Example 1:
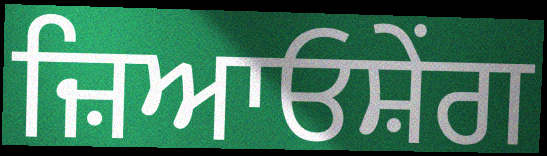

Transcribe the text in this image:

ਜ਼ਿਆਓਸ਼ੇਂਗ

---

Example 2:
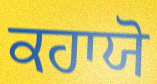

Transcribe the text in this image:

ਕਹਾਯੋ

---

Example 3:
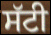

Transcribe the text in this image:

ਸੱਟੀ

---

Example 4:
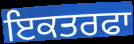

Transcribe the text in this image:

ਇਕਤਰਫਾ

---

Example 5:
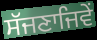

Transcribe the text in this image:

ਸੱਜਣਾਜਿਵੇਂ